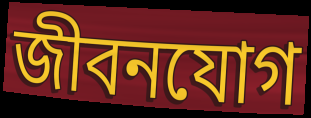
জীবনযোগ